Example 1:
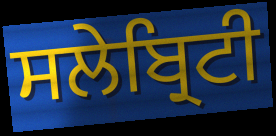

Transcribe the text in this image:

ਸਲੇਬ੍ਰਿਟੀ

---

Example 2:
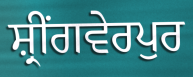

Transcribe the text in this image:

ਸ਼੍ਰੀਂਗਵੇਰਪੁਰ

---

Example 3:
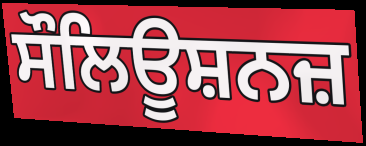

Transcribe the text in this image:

ਸੌਲਿਊਸ਼ਨਜ਼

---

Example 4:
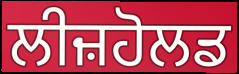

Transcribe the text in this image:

ਲੀਜ਼ਹੋਲਡ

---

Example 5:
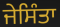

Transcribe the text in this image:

ਜੇਸਿੰਤਾ